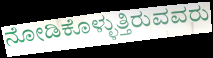
ನೋಡಿಕೊಳ್ಳುತ್ತಿರುವವರು